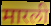
मारली